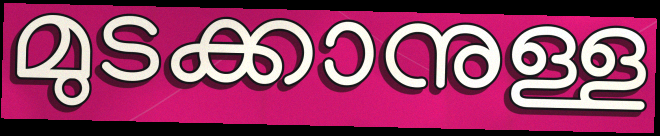
മുടക്കാനുള്ള